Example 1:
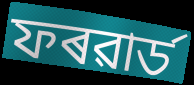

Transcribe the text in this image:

ফৰৱাৰ্ড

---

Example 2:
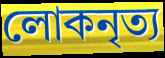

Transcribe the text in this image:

লোকনৃত্য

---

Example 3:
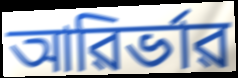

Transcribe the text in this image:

আৱিৰ্ভাৱ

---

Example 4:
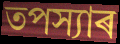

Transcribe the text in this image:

তপস্যাৰ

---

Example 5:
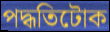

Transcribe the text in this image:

পদ্ধতিটোক